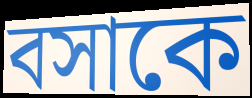
বসাকে